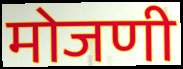
मोजणी